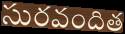
సురవందిత